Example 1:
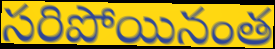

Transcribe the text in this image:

సరిపోయినంత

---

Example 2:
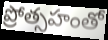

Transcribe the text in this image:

ప్రోత్సహంతో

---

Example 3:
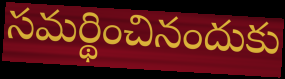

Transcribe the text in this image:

సమర్థించినందుకు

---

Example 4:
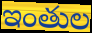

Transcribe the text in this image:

ఇంతుల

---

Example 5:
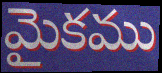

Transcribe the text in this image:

మైకము